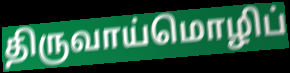
திருவாய்மொழிப்